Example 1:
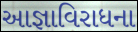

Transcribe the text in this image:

આજ્ઞાવિરાધના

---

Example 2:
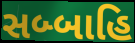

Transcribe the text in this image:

સબ્બાહિ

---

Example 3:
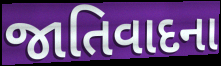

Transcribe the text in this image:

જાતિવાદના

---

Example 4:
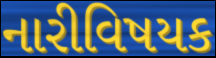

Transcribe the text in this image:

નારીવિષયક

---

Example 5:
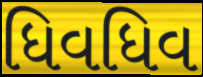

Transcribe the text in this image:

ધિવધિવ